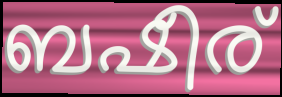
ബഷീര്